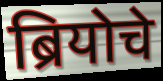
ब्रियोचे